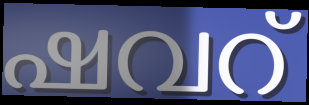
ഷവറ്